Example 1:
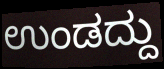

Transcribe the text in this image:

ಉಂಡದ್ದು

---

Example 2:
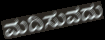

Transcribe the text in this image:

ಮದಿಸುವದು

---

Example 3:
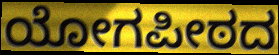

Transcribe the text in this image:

ಯೋಗಪೀಠದ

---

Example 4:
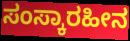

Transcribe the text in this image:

ಸಂಸ್ಕಾರಹೀನ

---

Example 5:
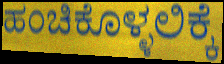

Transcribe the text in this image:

ಹಂಚಿಕೊಳ್ಳಲಿಕ್ಕೆ